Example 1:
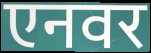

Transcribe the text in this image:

एनवर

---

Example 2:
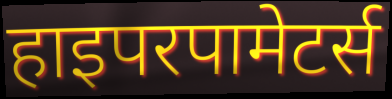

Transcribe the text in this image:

हाइपरपामेटर्स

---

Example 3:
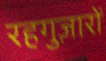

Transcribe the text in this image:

रहगुज़ारों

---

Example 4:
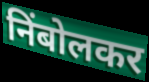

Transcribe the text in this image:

निंबोलकर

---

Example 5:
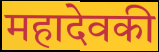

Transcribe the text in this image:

महादेवकी